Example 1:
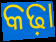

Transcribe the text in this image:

କଢ଼ା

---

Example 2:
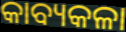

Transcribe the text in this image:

କାବ୍ୟକଳା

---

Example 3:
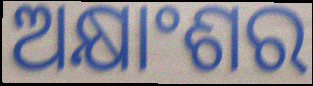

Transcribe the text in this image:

ଅକ୍ଷାଂଶର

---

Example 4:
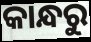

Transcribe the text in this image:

କାନ୍ଧରୁ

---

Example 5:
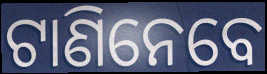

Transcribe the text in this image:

ଟାଣିନେବେ